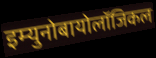
इम्युनोबायोलॉजिकल